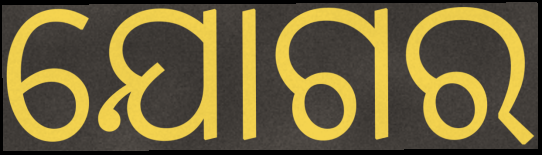
ଯୋଗର